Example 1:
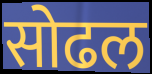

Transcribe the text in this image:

सोढल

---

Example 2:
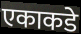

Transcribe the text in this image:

एकाकडे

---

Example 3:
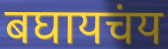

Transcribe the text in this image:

बघायचंय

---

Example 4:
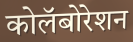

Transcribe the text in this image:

कोलॅबोरेशन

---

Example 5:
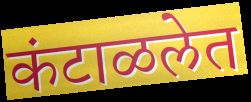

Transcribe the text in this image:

कंटाळलेत